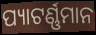
ପ୍ୟାଟର୍ଣ୍ଣମାନ